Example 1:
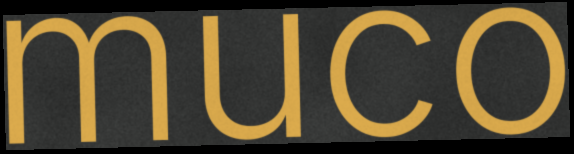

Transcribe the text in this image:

muco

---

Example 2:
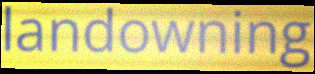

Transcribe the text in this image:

landowning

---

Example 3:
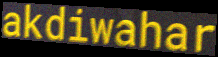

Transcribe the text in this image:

akdiwahar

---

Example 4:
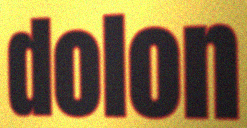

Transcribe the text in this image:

dolon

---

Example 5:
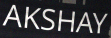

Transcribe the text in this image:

AKSHAY